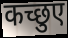
कच्छुए